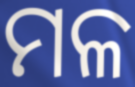
ମଳ